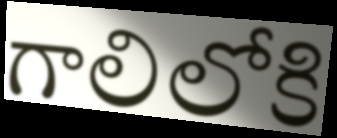
గాలిలోకి